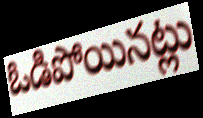
ఓడిపోయినట్లు